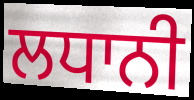
ਲਧਾਨੀ